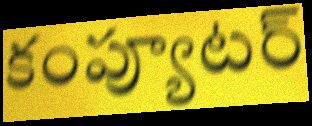
కంప్యూటర్